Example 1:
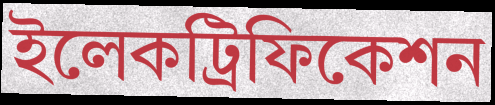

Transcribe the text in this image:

ইলেকট্রিফিকেশন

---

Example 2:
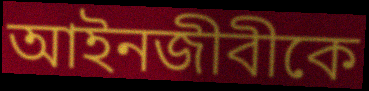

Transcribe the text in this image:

আইনজীবীকে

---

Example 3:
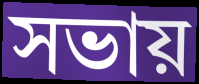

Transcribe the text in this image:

সভায়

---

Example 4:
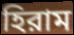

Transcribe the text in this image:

হিরাম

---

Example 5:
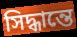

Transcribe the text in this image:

সিদ্ধান্তে